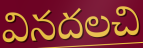
వినదలచి